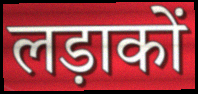
लड़ाकों